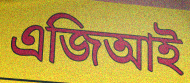
এজিআই